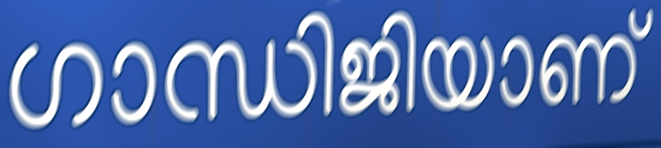
ഗാന്ധിജിയാണ്